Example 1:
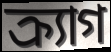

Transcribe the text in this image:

ক্র্যাগ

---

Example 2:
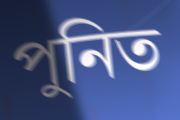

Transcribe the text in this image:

পুনিত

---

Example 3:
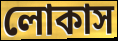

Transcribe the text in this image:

লোকাস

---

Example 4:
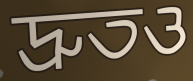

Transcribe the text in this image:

দ্রুতও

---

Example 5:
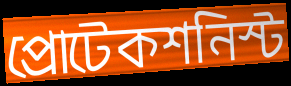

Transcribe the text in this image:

প্রোটেকশনিস্ট